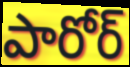
పారోర్